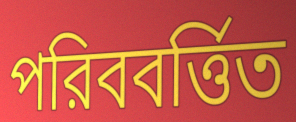
পরিববর্ত্তিত